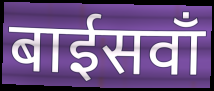
बाईसवाँ